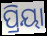
ପ୍ରିୟା